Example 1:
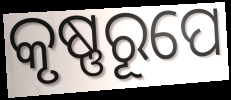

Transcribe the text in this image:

କୃଷ୍ଣରୂପେ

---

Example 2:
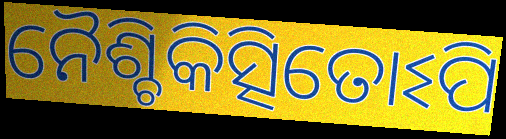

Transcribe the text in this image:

ନୈଶ୍ଚିକିତ୍ସିତୋଽପି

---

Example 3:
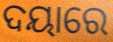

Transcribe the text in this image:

ଦୟାରେ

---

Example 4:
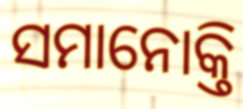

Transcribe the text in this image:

ସମାନୋକ୍ତି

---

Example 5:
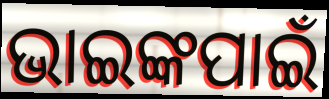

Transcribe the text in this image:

ଭାଇଙ୍କପାଇଁ